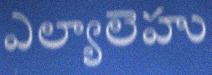
ఎల్యాలెహు